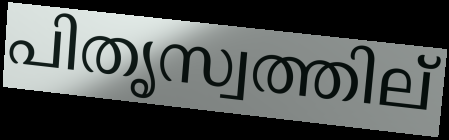
പിതൃസ്വത്തില്